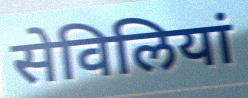
सेविलियां